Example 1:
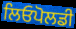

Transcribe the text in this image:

ਲਿਓਪੋਲਡੀ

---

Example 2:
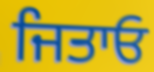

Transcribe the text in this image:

ਜਿਤਾਓ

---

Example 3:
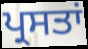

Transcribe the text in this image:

ਪ੍ਰਸਤਾਂ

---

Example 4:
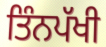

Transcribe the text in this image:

ਤਿੰਨਪੱਖੀ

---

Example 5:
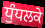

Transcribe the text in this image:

ਧੁੰਧਲਕੇ